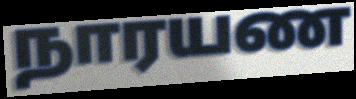
நாரயண